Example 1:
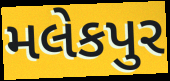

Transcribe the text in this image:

મલેકપુર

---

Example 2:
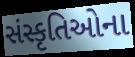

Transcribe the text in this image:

સંસ્કૃતિઓના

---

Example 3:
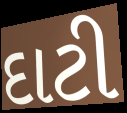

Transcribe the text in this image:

દાટી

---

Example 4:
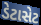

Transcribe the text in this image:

ડેટાસેટ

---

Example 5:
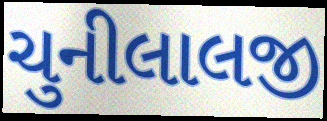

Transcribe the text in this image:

ચુનીલાલજી